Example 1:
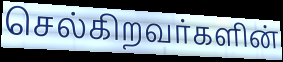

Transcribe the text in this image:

செல்கிறவர்களின்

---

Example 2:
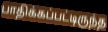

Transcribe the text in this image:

பாதிக்கப்பட்டிருந்த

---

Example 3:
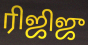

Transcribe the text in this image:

ரிஜிஜு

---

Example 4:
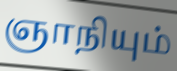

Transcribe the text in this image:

ஞாநியும்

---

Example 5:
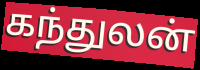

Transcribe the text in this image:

கந்துலன்